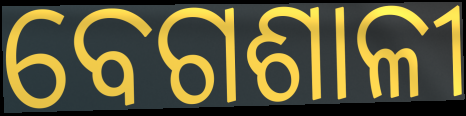
ବେଗଶାଳୀ